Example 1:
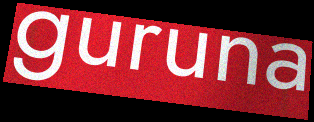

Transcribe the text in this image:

guruna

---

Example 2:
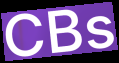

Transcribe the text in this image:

CBs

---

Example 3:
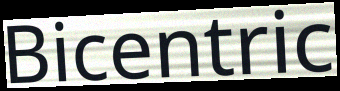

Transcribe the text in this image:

Bicentric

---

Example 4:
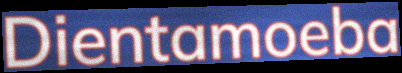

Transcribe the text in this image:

Dientamoeba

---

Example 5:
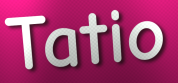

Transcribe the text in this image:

Tatio